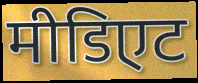
मीडिएट